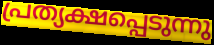
പ്രത്യക്ഷപ്പെടുന്നു